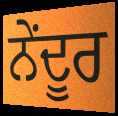
ਨੇਂਦੂਰ